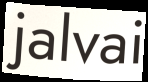
jalvai